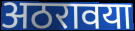
अठरावया